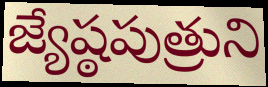
జ్యేష్ఠపుత్రుని